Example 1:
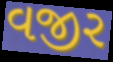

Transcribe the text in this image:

વજીર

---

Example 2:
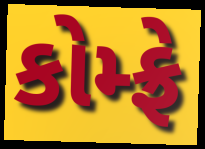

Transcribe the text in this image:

કોમ્ફ્રે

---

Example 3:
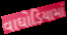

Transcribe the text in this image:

વાઘોડિયામાં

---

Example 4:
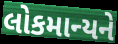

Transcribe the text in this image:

લોકમાન્યને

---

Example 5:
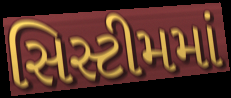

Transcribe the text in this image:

સિસ્ટીમમાં